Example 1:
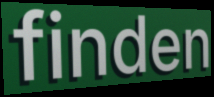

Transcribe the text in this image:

finden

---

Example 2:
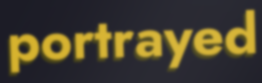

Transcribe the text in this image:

portrayed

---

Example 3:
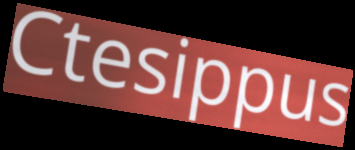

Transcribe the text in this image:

Ctesippus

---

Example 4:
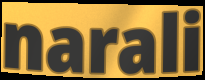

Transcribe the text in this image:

narali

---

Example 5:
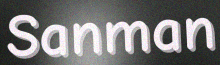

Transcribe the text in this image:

Sanman